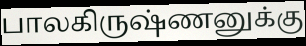
பாலகிருஷ்ணனுக்கு